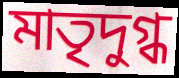
মাতৃদুগ্ধ